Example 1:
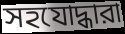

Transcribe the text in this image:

সহযোদ্ধারা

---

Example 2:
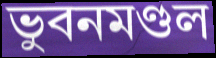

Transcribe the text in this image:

ভুবনমণ্ডল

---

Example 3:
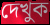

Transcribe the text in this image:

দেখুক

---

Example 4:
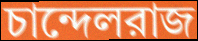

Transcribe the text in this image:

চান্দেলরাজ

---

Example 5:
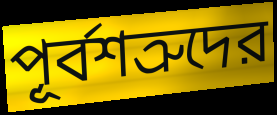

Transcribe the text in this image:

পূর্বশত্রুদের